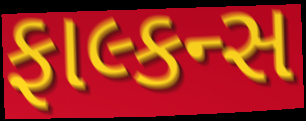
ફાલ્કન્સ